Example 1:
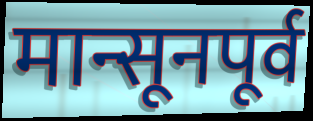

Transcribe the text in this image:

मान्सूनपूर्व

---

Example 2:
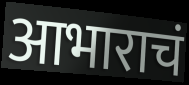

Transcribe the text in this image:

आभाराचं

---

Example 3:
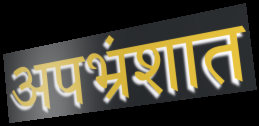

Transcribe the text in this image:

अपभ्रंशात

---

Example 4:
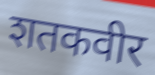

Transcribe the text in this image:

शतकवीर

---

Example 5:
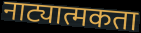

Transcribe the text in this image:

नाट्यात्मकता